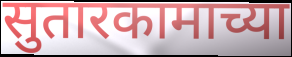
सुतारकामाच्या